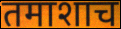
तमाशाच